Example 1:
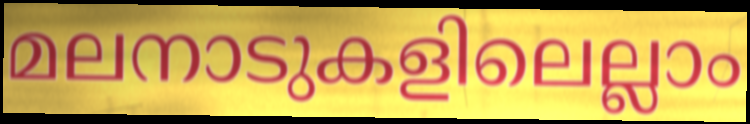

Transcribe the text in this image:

മലനാടുകളിലെല്ലാം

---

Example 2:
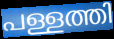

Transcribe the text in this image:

പള്ളത്തി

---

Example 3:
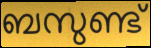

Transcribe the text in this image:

ബസുണ്ട്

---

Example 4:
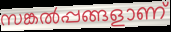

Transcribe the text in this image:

സങ്കൽപ്പങ്ങളാണ്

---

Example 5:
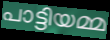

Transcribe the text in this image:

പാട്ടിയമ്മ